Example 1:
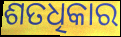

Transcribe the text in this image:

ଶତଧିକାର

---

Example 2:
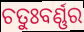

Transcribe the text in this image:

ଚତୁଃବର୍ଣ୍ଣର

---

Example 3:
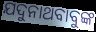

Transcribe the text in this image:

ଯଦୁନାଥବାବୁଙ୍କ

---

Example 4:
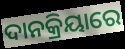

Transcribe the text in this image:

ଦାନକ୍ରିୟାରେ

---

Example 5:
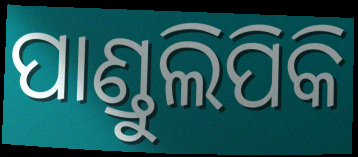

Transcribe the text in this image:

ପାଣ୍ଡୁଲିପିକି